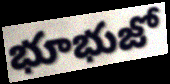
భూభుజో